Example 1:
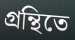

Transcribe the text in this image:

গ্রন্থিতে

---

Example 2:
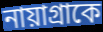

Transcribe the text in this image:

নায়াগ্রাকে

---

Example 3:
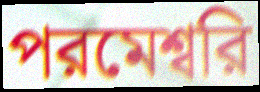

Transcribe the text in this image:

পরমেশ্বরি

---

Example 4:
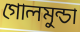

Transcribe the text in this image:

গোলমুন্ডা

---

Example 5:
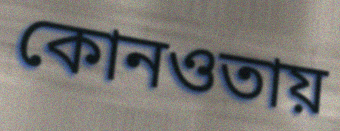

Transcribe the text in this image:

কোনওতায়